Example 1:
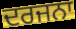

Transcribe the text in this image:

ਦਰਜਨਾ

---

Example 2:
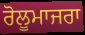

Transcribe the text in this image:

ਰੋਲੂਮਾਜਰਾ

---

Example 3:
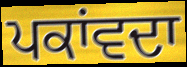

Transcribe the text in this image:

ਪਕਾਂਵਦਾ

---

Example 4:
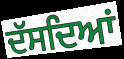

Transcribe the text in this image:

ਦੱਸਦਿਆਂ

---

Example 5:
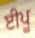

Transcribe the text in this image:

ਈਪੂ